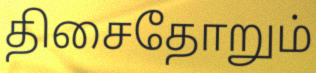
திசைதோறும்